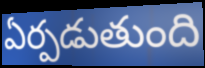
ఏర్పడుతుంది